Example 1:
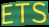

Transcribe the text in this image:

ETS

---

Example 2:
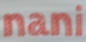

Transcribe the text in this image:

nani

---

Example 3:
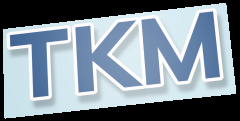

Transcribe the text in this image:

TKM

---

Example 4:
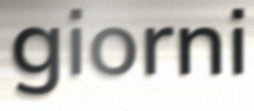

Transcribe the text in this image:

giorni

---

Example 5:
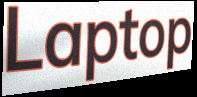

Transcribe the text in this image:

Laptop